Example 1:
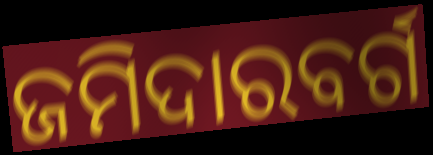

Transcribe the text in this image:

ଜମିଦାରବର୍ଗ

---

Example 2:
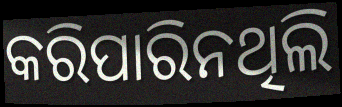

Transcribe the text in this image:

କରିପାରିନଥିଲି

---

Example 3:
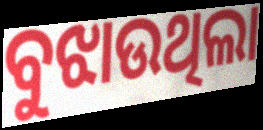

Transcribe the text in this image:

ବୁଝାଉଥିଲା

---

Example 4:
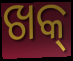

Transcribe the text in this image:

ଖକ୍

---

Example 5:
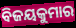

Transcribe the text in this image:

ବିଜୟକୁମାର